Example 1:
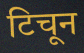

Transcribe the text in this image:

टिचून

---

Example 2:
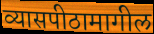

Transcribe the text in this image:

व्यासपीठामागील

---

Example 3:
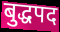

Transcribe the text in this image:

बुद्धपद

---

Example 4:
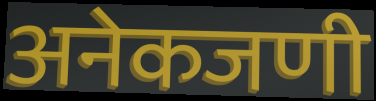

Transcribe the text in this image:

अनेकजणी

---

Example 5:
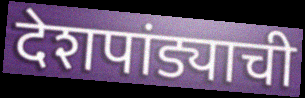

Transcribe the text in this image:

देशपांड्याची